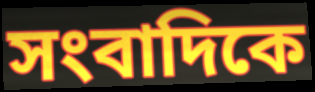
সংবাদিকে